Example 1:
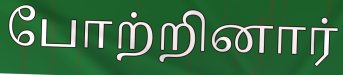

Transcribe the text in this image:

போற்றினார்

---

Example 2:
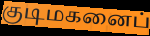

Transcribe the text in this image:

குடிமகனைப்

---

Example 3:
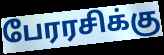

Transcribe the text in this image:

பேரரசிக்கு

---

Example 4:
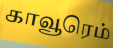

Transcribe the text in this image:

காவூரெம்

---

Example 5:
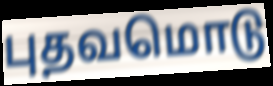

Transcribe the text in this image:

புதவமொடு